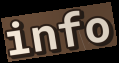
info